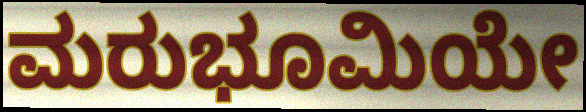
ಮರುಭೂಮಿಯೇ